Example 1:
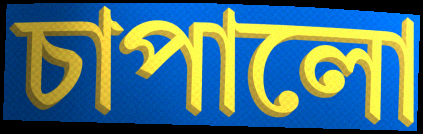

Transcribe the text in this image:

চাপালো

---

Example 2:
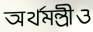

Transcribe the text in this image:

অর্থমন্ত্রীও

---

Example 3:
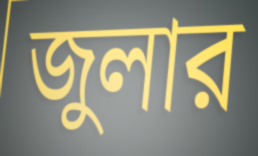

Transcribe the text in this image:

জুলার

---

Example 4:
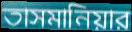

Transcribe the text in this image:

তাসমানিয়ার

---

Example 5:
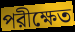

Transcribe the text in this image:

পরীক্ষেত